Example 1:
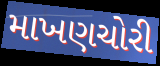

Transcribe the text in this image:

માખણચોરી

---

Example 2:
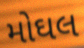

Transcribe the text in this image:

મોઘલ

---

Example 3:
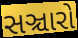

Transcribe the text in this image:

સઞ્ચારો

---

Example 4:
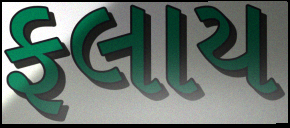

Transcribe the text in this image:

ફલાય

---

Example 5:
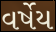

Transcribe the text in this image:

વર્ષેય